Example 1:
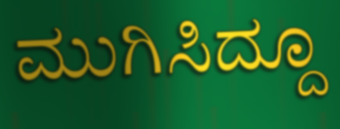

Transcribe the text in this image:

ಮುಗಿಸಿದ್ದೂ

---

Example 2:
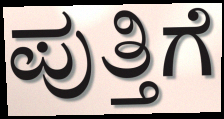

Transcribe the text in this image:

ಪುತ್ತಿಗೆ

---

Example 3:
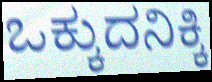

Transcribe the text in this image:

ಒಕ್ಕುದನಿಕ್ಕಿ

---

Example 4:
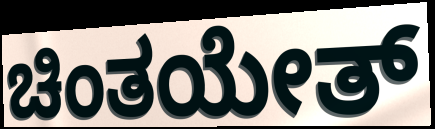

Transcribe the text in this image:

ಚಿಂತಯೇತ್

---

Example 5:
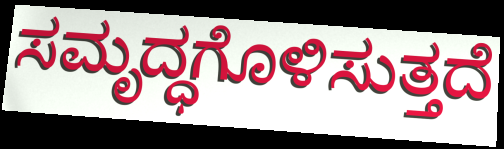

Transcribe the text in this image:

ಸಮೃದ್ಧಗೊಳಿಸುತ್ತದೆ